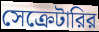
সেক্রেটারির